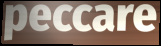
peccare